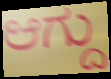
ಆಗ್ದು